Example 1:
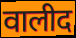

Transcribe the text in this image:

वालीद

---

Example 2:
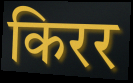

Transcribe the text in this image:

किरर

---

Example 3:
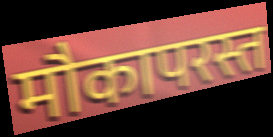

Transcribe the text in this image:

मौकापरस्त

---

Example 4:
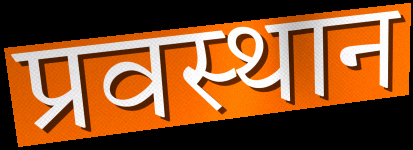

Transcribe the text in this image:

प्रवस्थान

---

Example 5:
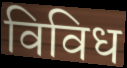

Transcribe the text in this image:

विविध